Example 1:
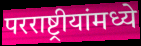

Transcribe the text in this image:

परराष्ट्रीयांमध्ये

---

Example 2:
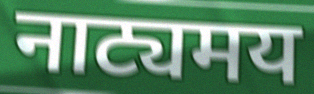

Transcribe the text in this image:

नाट्यमय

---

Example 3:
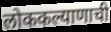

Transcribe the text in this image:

लोककल्याणाची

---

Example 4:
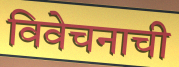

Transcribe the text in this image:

विवेचनाची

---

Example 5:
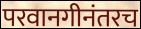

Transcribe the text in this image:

परवानगीनंतरच